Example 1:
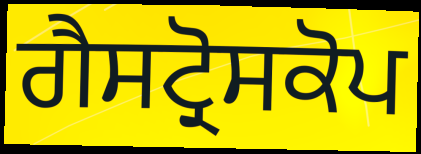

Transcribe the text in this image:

ਗੈਸਟ੍ਰੋਸਕੋਪ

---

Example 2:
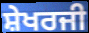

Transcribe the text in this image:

ਸ਼ੇਖਰਜੀ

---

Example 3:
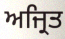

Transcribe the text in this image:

ਅਜ੍ਰਿਤ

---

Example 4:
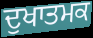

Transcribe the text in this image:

ਦੁਖਾਤਮਕ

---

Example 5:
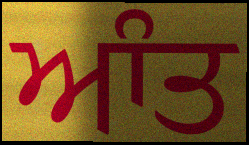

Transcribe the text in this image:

ਆੰਤ